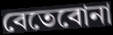
বেতেবোনা